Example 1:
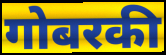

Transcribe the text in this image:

गोबरकी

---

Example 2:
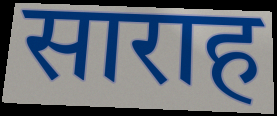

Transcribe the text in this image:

साराह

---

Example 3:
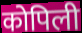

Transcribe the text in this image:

कोपिली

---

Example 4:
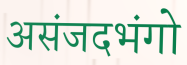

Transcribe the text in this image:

असंजदभंगो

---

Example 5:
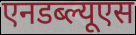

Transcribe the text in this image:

एनडब्ल्यूएस